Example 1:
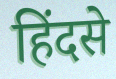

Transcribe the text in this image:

हिंदसे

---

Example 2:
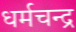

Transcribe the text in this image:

धर्मचन्द्र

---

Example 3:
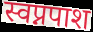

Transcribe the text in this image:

स्वप्नपाश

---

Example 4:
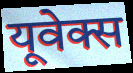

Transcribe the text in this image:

यूवेक्स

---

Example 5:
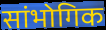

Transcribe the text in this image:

सांभोगिक